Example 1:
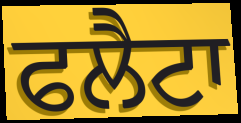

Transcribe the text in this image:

ਫਲੈਟਾ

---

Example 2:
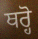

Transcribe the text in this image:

ਥਰ੍ਹੋ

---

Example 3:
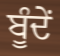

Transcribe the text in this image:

ਬੂੰਦੇਂ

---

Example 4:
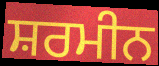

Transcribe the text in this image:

ਸ਼ਰਮੀਨ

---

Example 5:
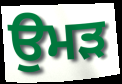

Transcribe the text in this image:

ਉਮੜ